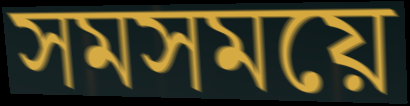
সমসময়ে